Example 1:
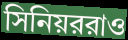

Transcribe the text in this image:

সিনিয়ররাও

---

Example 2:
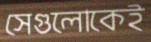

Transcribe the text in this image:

সেগুলোকেই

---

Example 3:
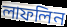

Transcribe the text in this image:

লাফলিন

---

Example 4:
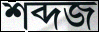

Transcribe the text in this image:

শব্দজ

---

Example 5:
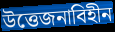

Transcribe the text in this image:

উত্তেজনাবিহীন